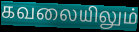
கவலையிலும்